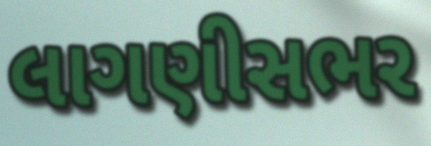
લાગણીસભર